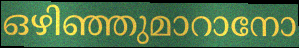
ഒഴിഞ്ഞുമാറാനോ